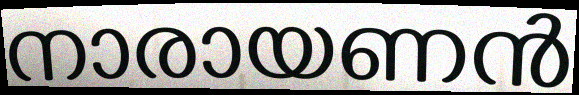
നാരായണൻ